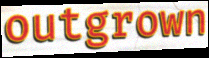
outgrown